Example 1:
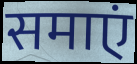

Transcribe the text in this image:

समाएं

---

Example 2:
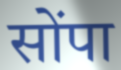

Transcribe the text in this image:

सोंपा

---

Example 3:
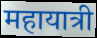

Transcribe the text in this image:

महायात्री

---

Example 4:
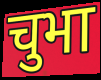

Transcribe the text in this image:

चुभा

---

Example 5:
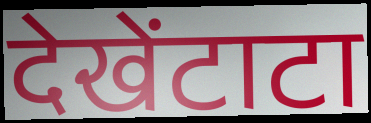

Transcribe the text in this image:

देखेंटाटा